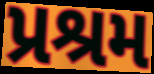
પ્રશ્રમ